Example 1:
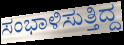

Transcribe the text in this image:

ಸಂಭಾಳಿಸುತ್ತಿದ್ದ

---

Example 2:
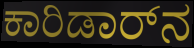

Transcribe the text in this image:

ಕಾರಿಡಾರ್‌ನ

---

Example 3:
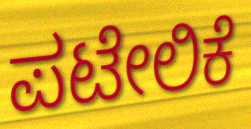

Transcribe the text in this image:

ಪಟೇಲಿಕೆ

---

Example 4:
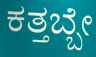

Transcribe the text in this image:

ಕತ್ತಬ್ಬೇ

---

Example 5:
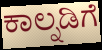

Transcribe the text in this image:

ಕಾಲ್ನಡಿಗೆ